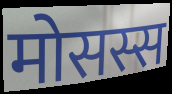
मोसस्स